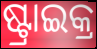
ଷ୍ଟ୍ରାଇକ୍ର